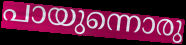
പായുന്നൊരു